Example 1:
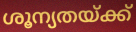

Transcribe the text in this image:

ശൂന്യതയ്ക്ക്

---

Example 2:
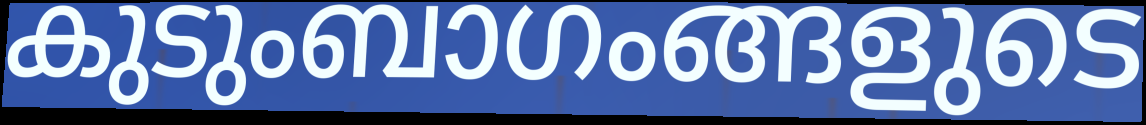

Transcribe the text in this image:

കുടുംബാഗംങ്ങളുടെ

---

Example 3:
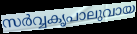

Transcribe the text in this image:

സർവ്വകൃപാലുവായ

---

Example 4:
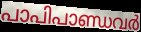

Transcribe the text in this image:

പാപിപാണ്ഡവർ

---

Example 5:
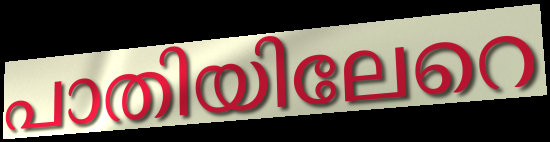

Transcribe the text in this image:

പാതിയിലേറെ